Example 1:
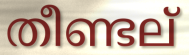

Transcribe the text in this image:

തീണ്ടല്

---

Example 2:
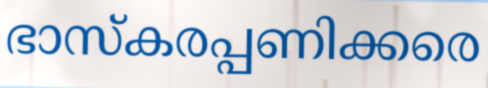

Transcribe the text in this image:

ഭാസ്കരപ്പണിക്കരെ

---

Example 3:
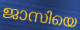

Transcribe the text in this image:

ജാസിയെ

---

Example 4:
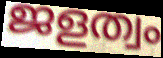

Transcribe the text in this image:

ജളത്വം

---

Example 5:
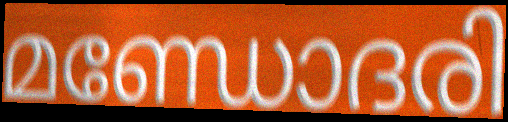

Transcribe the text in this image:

മണ്ഡോദരി